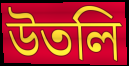
উতলি